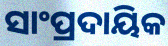
ସାଂପ୍ରଦାୟିକ